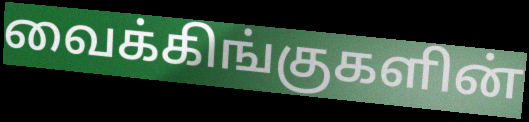
வைக்கிங்குகளின்